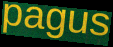
pagus